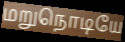
மறுநொடியே